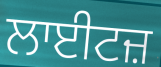
ਲਾਈਟਜ਼